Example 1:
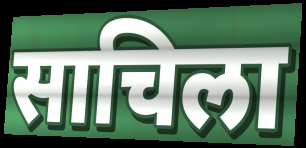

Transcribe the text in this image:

साचिला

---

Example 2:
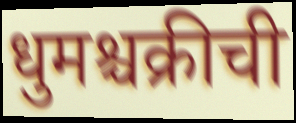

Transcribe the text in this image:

धुमश्चक्रीची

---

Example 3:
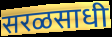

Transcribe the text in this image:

सरळसाधी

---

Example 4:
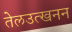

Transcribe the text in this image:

तेलउत्खनन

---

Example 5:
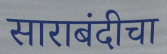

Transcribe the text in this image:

साराबंदीचा